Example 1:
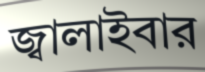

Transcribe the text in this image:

জ্বালাইবার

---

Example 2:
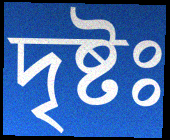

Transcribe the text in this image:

দৃষ্টঃ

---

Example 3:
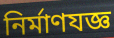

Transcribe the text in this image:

নির্মাণযজ্ঞ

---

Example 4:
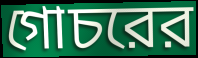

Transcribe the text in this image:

গোচরের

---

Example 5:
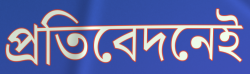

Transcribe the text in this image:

প্রতিবেদনেই